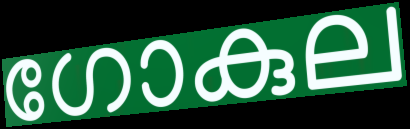
ഗോകുല